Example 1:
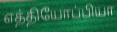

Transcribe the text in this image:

எத்தியோப்பியா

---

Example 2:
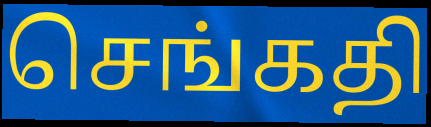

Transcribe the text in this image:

செங்கதி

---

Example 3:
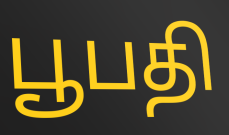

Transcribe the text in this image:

பூபதி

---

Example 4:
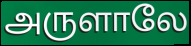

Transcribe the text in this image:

அருளாலே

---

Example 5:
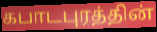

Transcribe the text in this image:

கபாடபுரத்தின்